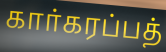
கார்கரப்பத்